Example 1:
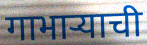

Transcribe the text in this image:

गाभार्‍याची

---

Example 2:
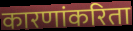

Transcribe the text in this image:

कारणांकरिता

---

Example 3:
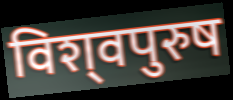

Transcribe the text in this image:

विश्वपुरुष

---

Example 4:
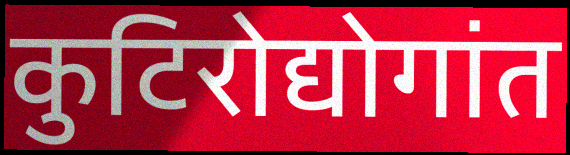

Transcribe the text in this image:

कुटिरोद्योगांत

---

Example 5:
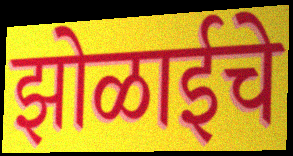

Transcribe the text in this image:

झोळाईचे